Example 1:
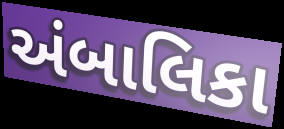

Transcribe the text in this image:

અંબાલિકા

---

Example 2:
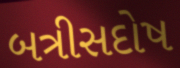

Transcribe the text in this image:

બત્રીસદોષ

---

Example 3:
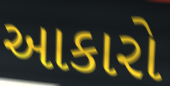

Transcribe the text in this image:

આકારો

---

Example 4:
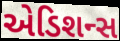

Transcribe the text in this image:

એડિશન્સ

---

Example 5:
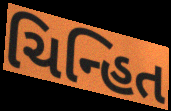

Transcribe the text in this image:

ચિન્હિત